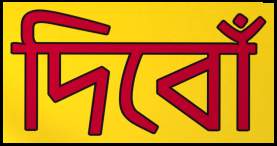
দিবোঁ